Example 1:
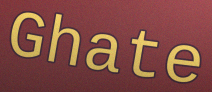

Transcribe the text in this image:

Ghate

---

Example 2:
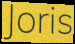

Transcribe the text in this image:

Joris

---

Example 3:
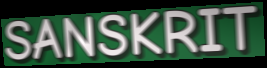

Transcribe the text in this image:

SANSKRIT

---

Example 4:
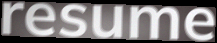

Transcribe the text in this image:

resume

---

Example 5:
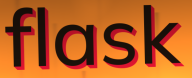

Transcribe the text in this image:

flask